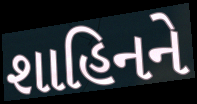
શાહિનને